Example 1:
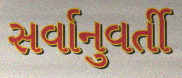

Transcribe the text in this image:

સર્વાનુવર્તી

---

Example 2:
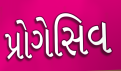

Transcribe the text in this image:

પ્રોગેસિવ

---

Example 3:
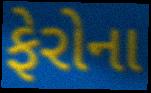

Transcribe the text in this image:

ફેરોના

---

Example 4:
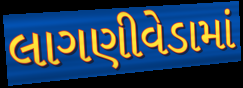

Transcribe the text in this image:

લાગણીવેડામાં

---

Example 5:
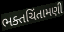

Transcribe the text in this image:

ભક્તચિંતામણી